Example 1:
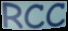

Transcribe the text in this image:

RCC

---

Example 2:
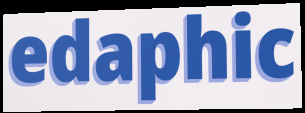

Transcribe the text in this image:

edaphic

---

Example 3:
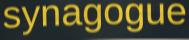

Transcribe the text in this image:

synagogue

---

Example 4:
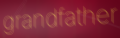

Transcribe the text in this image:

grandfather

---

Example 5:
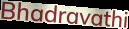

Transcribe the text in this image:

Bhadravathi